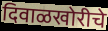
दिवाळखोरीचे